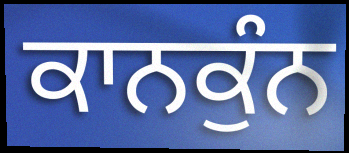
ਕਾਨਕੁੰਨ